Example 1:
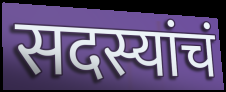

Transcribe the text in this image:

सदस्यांचं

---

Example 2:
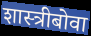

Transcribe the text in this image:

शास्त्रीबोवा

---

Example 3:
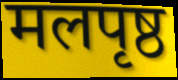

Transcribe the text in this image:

मलपृष्ठ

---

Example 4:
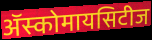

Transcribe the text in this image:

ॲस्कोमायसिटीज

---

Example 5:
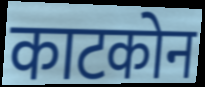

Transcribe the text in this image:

काटकोन